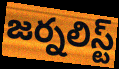
జర్నలిస్ట్